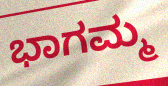
ಭಾಗಮ್ಮ